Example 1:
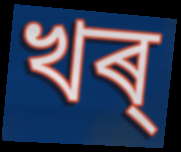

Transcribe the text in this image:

খৰ্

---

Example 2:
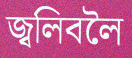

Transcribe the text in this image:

জ্বলিবলৈ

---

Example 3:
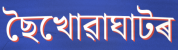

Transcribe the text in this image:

ছৈখোৱাঘাটৰ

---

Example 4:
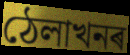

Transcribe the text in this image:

ঠেলাখনৰ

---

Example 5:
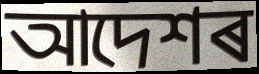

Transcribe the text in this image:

আদেশৰ